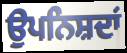
ਉਪਨਿਸ਼ਦਾਂ